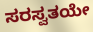
ಸರಸ್ವತಯೇ